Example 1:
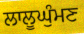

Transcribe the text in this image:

ਲਾਲੂਘੁੰਮਣ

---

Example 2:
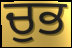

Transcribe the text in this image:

ਚੁਭ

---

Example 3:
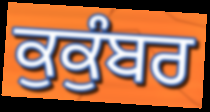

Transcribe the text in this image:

ਕੁਕੁੰਬਰ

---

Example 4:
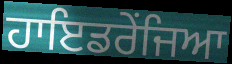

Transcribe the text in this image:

ਹਾਇਡਰੇਂਜਿਆ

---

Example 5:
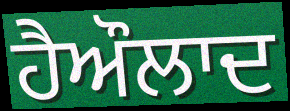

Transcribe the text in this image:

ਹੈਔਲਾਦ